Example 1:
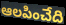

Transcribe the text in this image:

ఆలపించేది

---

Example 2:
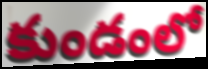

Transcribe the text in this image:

కుండంలో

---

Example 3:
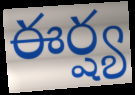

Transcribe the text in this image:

ఈర్ష్య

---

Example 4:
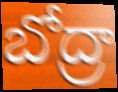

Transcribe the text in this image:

బోద్రా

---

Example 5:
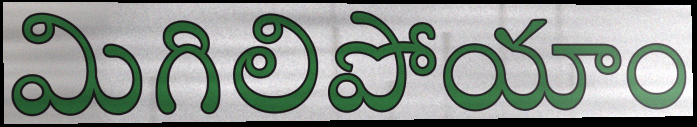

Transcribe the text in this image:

మిగిలిపోయాం